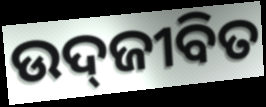
ଉଦ୍‍ଜୀବିତ